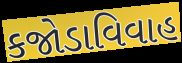
કજોડાવિવાહ